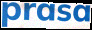
prasa